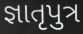
જ્ઞાતૃપુત્ર